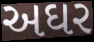
અઘર